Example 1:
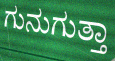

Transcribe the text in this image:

ಗುನುಗುತ್ತಾ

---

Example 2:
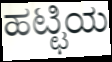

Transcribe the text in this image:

ಹಟ್ಟಿಯ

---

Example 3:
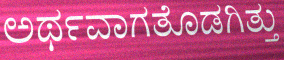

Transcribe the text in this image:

ಅರ್ಥವಾಗತೊಡಗಿತ್ತು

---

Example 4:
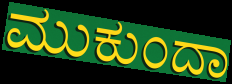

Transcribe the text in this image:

ಮುಕುಂದಾ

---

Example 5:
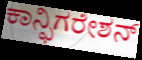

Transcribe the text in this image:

ಕಾನ್ಫಿಗರೇಶನ್